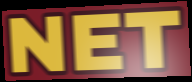
NET